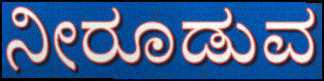
ನೀರೂಡುವ